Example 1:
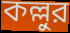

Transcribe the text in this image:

কল্লুর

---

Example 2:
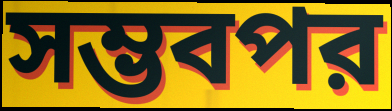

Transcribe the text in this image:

সম্ভবপর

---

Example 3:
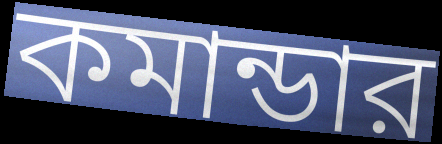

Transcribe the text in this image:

কমান্ডার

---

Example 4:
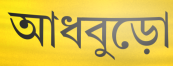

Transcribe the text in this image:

আধবুড়ো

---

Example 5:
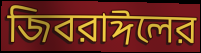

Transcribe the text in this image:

জিবরাঈলের